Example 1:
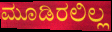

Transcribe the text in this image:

ಮೂಡಿರಲಿಲ್ಲ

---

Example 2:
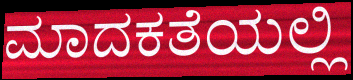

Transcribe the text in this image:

ಮಾದಕತೆಯಲ್ಲಿ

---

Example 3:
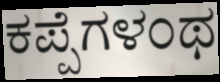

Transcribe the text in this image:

ಕಪ್ಪೆಗಳಂಥ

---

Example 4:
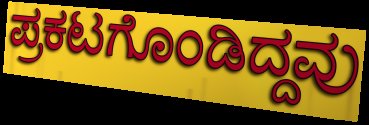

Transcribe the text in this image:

ಪ್ರಕಟಗೊಂಡಿದ್ದವು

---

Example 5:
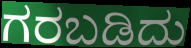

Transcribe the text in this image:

ಗರಬಡಿದು